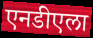
एनडीएला